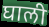
घाली